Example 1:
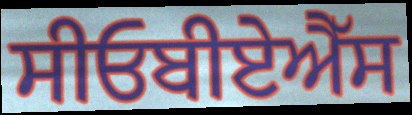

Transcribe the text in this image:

ਸੀਓਬੀਏਐੱਸ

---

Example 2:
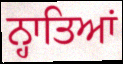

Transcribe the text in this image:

ਨ੍ਹਾਤਿਆਂ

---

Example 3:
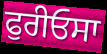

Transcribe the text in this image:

ਫੁਰੀਓਸਾ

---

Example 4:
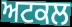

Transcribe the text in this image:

ਅਟਕਲ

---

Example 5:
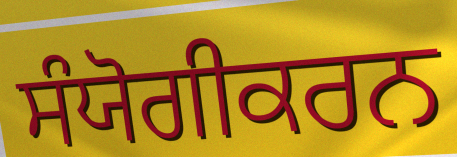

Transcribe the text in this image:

ਸੰਯੋਗੀਕਰਨ